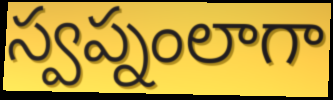
స్వప్నంలాగా